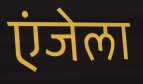
एंजेला